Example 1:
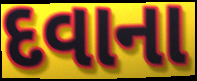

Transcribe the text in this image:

દવાના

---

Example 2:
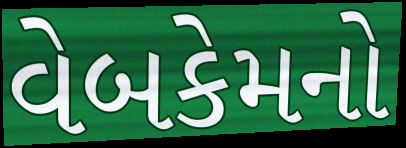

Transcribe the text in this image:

વેબકેમનો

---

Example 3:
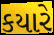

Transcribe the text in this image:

કયારે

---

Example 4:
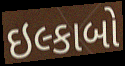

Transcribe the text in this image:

ઇલ્કાબો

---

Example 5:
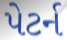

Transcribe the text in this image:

પેટર્ન